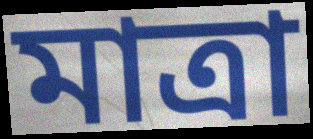
মাত্রা